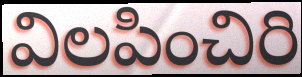
విలపించిరి